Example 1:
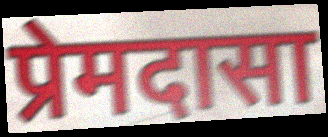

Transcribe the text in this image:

प्रेमदासा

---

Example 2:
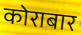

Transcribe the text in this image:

कोराबार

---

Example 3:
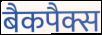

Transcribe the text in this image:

बैकपैक्स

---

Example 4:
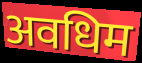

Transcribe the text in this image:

अवधिम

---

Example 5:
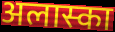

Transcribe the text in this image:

अलास्का